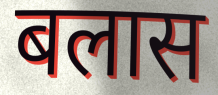
बलास